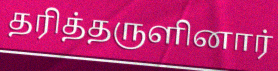
தரித்தருளினார்